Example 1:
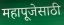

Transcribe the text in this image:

महापूजेसाठी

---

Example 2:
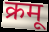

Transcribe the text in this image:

क्रमू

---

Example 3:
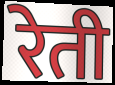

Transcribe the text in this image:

रेती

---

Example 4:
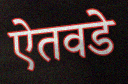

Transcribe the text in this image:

ऐतवडे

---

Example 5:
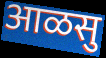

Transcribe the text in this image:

आळसु